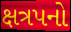
ક્ષત્રપનો